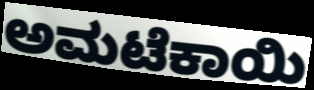
ಅಮಟೆಕಾಯಿ